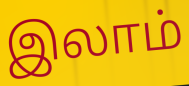
இலாம்